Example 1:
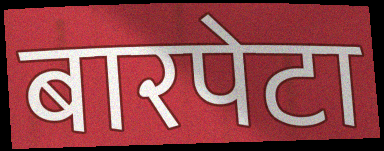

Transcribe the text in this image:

बारपेटा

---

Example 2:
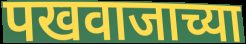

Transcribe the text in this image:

पखवाजाच्या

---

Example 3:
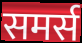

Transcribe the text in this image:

समर्स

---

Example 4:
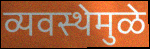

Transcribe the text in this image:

व्यवस्थेमुळे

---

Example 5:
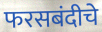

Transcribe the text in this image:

फरसबंदीचे